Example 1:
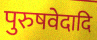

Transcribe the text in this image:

पुरुषवेदादि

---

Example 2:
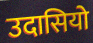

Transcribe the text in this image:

उदासियो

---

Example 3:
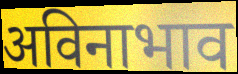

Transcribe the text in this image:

अविनाभाव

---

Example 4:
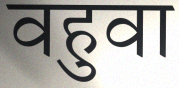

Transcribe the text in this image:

वहुवा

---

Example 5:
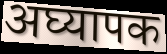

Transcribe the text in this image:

अघ्यापक